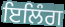
ਇਲਿੰਗ